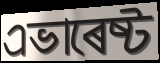
এভাৰেষ্ট